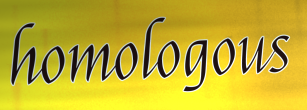
homologous